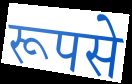
रूपसे